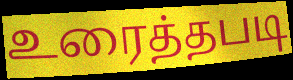
உரைத்தபடி